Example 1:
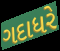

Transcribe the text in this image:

ગદાધરે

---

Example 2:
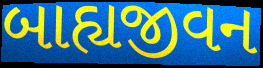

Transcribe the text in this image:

બાહ્યજીવન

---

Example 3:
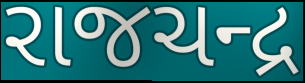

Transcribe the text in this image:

રાજચન્દ્ર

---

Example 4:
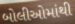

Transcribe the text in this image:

બોલીઓમાંથી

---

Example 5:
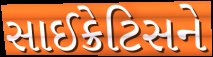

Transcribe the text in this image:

સાઈક્રેટિસને